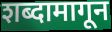
शब्दामागून